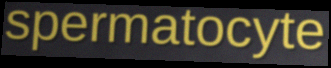
spermatocyte